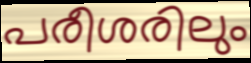
പരീശരിലും